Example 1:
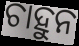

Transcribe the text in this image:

ଚାହୁନ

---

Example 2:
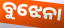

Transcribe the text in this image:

ବୁଝେନା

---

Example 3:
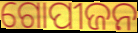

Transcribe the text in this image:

ଗୋପୀଜନ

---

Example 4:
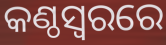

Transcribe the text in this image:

କଣ୍ଠସ୍ୱରରେ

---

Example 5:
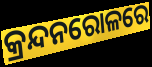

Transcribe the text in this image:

କ୍ରନ୍ଦନରୋଳରେ